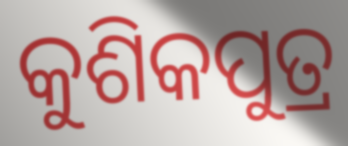
କୁଶିକପୁତ୍ର